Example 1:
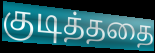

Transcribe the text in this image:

குடித்ததை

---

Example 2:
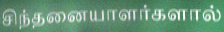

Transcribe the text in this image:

சிந்தனையாளர்களால்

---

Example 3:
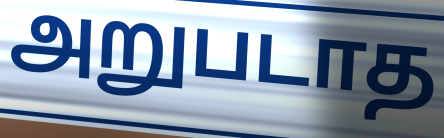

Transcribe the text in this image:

அறுபடாத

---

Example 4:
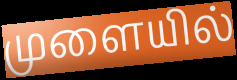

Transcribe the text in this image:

முளையில்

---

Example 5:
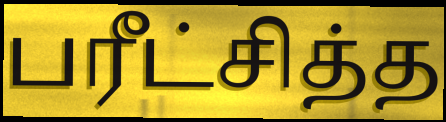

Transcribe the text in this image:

பரீட்சித்த